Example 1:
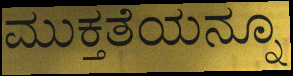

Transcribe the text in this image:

ಮುಕ್ತತೆಯನ್ನೂ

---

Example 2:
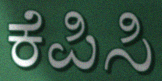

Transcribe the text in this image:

ಕೆಪಿಸಿ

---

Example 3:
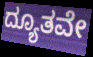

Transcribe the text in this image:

ದ್ಯೂತವೇ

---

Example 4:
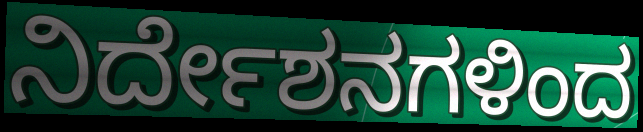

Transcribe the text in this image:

ನಿರ್ದೇಶನಗಳಿಂದ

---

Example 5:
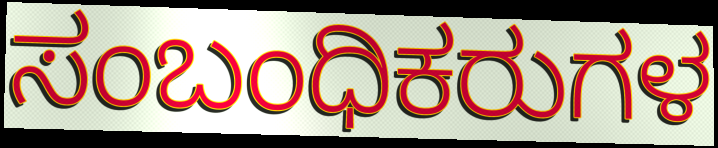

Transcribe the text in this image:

ಸಂಬಂಧಿಕರುಗಳ